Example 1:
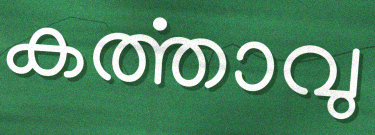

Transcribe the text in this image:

കൎത്താവു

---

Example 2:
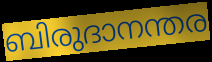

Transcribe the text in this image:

ബിരുദാനന്തര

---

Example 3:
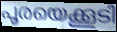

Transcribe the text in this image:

പൂരയെക്കൂടി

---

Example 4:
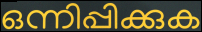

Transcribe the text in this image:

ഒന്നിപ്പിക്കുക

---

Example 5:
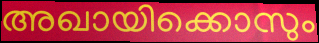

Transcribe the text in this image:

അഖായിക്കൊസും